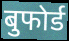
बुफोर्ड